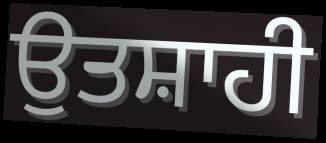
ਉਤਸ਼ਾਹੀ